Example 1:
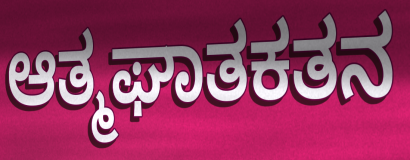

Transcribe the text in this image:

ಆತ್ಮಘಾತಕತನ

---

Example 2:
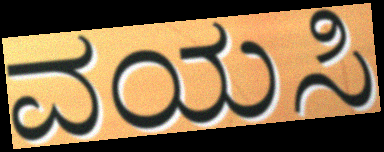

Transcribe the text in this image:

ವಯಸಿ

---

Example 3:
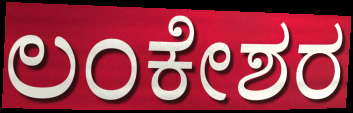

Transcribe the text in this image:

ಲಂಕೇಶರ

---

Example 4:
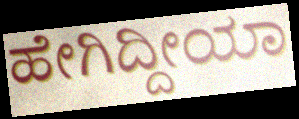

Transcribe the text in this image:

ಹೇಗಿದ್ದೀಯಾ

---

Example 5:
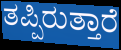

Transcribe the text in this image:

ತಪ್ಪಿರುತ್ತಾರೆ